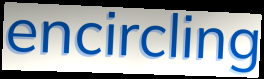
encircling